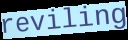
reviling